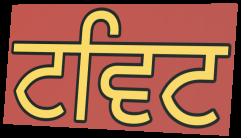
ਟਵਿਟ